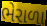
ભેરાળા